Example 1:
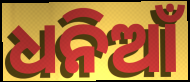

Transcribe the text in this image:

ଧନିଆଁ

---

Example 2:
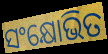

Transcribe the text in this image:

ସଂକ୍ଷୋଭିତ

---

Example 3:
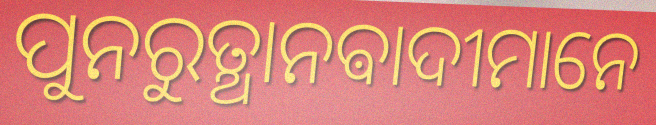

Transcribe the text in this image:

ପୁନରୁତ୍ଥାନଵାଦୀମାନେ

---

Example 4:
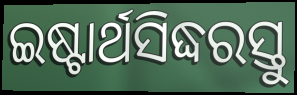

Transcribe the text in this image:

ଇଷ୍ଟାର୍ଥସିଦ୍ଧରସ୍ତୁ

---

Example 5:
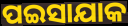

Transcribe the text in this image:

ପଇସାଯାକ